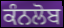
ਕੰਨਲੋਬ